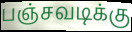
பஞ்சவடிக்கு